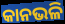
କାନଭଳି